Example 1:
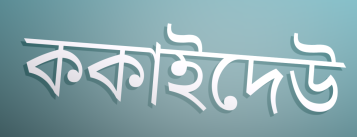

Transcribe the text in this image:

ককাইদেউ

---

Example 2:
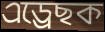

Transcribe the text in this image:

এড্ৰেছক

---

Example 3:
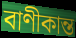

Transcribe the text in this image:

বাণীকান্ত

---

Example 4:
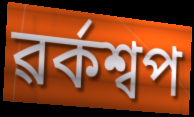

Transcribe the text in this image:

ৱৰ্কশ্বপ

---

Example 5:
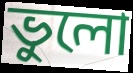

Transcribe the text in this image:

ভুলো